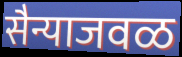
सैन्याजवळ